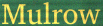
Mulrow